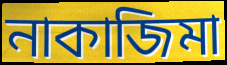
নাকাজিমা